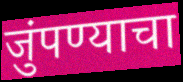
जुंपण्याचा